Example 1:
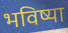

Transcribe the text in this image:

भविष्या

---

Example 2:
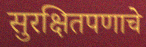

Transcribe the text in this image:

सुरक्षितपणाचे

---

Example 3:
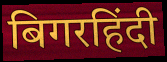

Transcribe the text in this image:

बिगरहिंदी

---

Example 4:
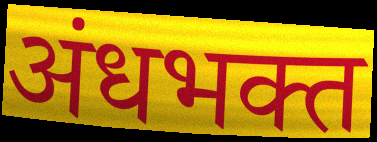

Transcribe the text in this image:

अंधभक्त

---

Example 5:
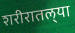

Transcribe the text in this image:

शरीरातल्या